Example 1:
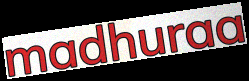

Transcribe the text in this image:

madhuraa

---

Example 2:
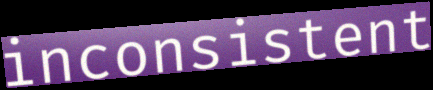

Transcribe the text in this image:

inconsistent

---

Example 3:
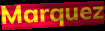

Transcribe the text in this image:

Marquez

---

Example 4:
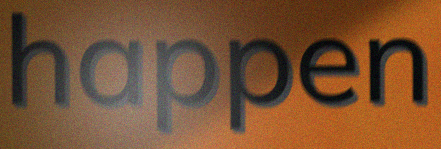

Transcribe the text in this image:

happen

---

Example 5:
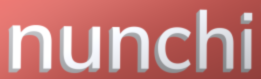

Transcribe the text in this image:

nunchi